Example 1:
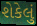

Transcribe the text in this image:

શેકેલું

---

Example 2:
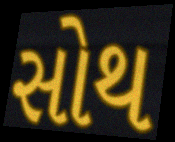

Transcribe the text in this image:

સોથ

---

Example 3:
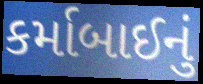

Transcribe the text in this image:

કર્માબાઈનું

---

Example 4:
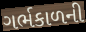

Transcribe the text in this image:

ગર્ભકાળની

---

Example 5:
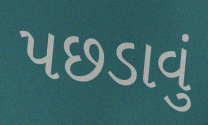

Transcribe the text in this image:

પછડાવું